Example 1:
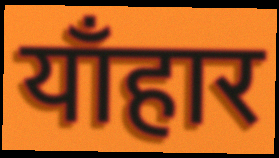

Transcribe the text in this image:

याँहार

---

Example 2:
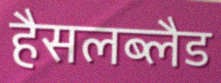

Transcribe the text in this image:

हैसलब्लैड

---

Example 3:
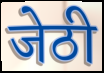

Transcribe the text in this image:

जेठी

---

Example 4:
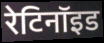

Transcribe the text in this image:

रेटिनॉइड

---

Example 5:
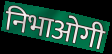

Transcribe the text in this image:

निभाओगी